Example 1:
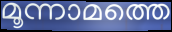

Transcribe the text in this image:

മൂന്നാമത്തെ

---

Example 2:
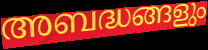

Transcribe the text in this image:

അബദ്ധങ്ങളും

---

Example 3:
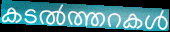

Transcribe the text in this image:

കടൽത്തറകൾ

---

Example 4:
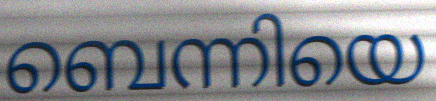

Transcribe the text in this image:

ബെന്നിയെ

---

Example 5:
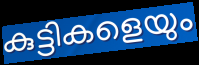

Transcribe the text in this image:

കുട്ടികളെയും